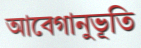
আবেগানুভূতি